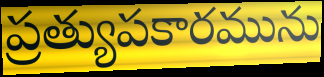
ప్రత్యుపకారమును